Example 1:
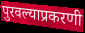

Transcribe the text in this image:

पुरवल्याप्रकरणी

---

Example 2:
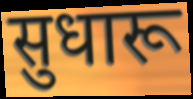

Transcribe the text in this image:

सुधारू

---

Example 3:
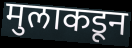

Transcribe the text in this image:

मुलाकडून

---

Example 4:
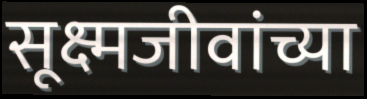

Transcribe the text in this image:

सूक्ष्मजीवांच्या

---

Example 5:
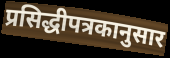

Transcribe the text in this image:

प्रसिद्धीपत्रकानुसार